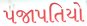
પજાપતિયો